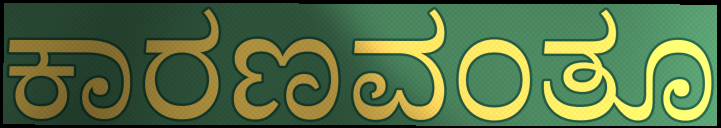
ಕಾರಣವಂತೂ